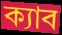
ক্যাব